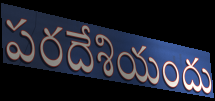
పరదేశియందు